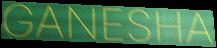
GANESHA